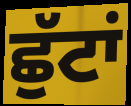
ਛੁੱਟਾਂ